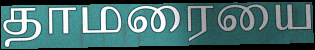
தாமரையை